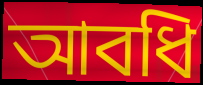
আবধি